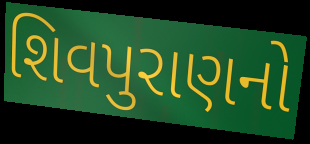
શિવપુરાણનો